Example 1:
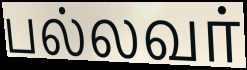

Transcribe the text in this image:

பல்லவர்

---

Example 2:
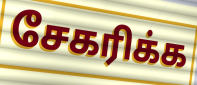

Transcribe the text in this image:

சேகரிக்க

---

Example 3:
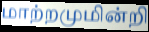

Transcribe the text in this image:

மாற்றமுமின்றி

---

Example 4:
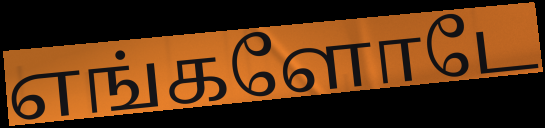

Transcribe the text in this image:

எங்களோடே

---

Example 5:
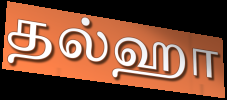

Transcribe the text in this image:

தல்ஹா